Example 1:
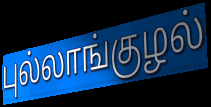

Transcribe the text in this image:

புல்லாங்குழல்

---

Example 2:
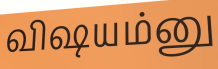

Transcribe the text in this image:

விஷயம்னு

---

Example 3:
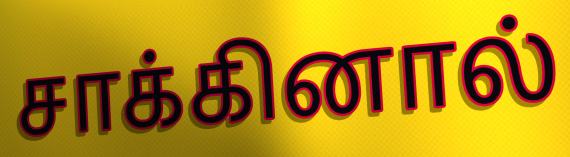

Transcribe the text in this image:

சாக்கினால்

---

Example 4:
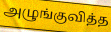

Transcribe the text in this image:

அழுங்குவித்த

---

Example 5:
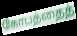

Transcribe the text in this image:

கோபத்தைத்